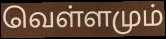
வெள்ளமும்